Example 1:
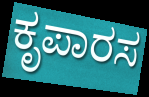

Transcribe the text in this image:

ಕೃಪಾರಸ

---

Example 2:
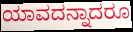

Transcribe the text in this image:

ಯಾವದನ್ನಾದರೂ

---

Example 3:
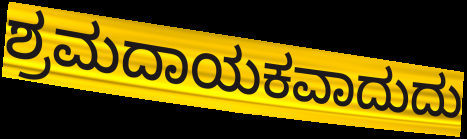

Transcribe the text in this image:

ಶ್ರಮದಾಯಕವಾದುದು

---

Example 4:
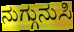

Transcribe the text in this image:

ನುಗ್ಗುನುಸಿ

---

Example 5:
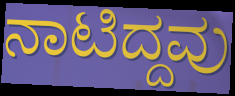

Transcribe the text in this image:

ನಾಟಿದ್ದವು